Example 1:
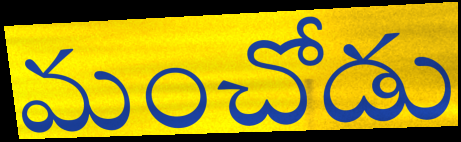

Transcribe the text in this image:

మంచోడు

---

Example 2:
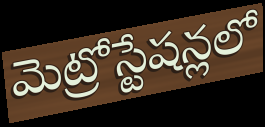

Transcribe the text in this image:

మెట్రోస్టేషన్లలో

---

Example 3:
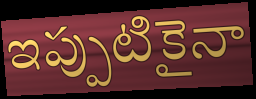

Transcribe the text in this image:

ఇప్పుటికైనా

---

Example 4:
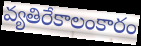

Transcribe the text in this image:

వ్యతిరేకాలంకారం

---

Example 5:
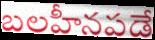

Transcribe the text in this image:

బలహీనపడే